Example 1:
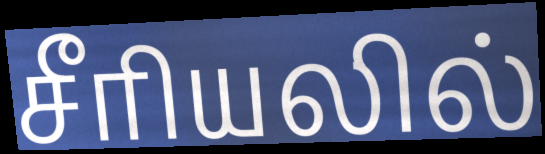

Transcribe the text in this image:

சீரியலில்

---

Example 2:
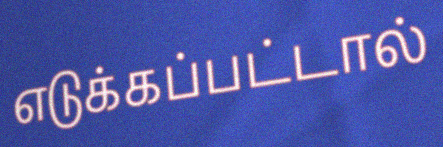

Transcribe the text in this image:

எடுக்கப்பட்டால்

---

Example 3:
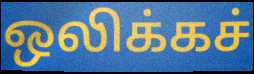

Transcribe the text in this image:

ஒலிக்கச்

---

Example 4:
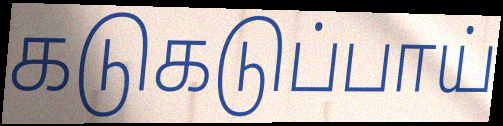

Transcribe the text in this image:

கடுகடுப்பாய்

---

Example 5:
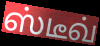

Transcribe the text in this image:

ஸ்டீவ்